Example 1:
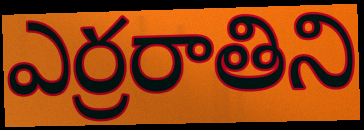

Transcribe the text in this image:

ఎర్రరాతిని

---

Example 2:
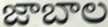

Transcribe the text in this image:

జాబాల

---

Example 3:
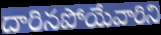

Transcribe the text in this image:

దారినపోయేవారిని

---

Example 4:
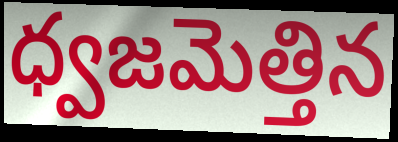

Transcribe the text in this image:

ధ్వజమెత్తిన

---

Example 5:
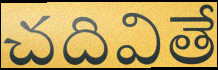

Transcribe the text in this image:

చదివితే